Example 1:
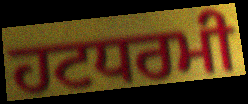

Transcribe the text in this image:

ਹਟਧਰਮੀ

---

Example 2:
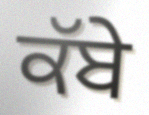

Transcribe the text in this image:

ਕੱਬੇ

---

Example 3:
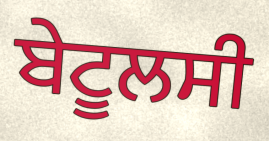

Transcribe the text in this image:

ਬੇਟੂਲਸੀ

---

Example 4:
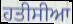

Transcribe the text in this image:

ਹਤੀਸੀਆ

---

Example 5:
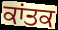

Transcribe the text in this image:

ਕਾਂਤਕ